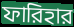
ফারিহার